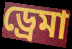
ড্রেমা